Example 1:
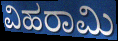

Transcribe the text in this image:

ವಿಹರಾಮಿ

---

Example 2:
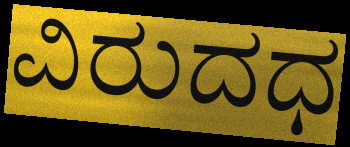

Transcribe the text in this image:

ವಿರುದಧ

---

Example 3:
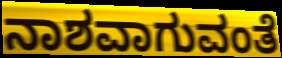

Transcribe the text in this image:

ನಾಶವಾಗುವಂತೆ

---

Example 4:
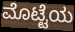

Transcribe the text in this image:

ಮೊಟ್ಟೆಯ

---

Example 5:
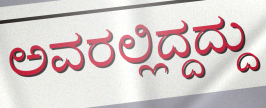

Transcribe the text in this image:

ಅವರಲ್ಲಿದ್ದದ್ದು